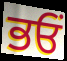
ਭਓਂ